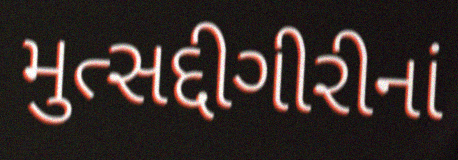
મુત્સદ્દીગીરીનાં